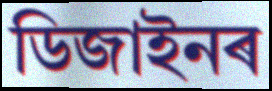
ডিজাইনৰ